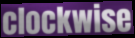
clockwise